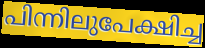
പിന്നിലുപേക്ഷിച്ച